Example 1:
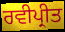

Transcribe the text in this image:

ਰਵੀਪ੍ਰੀਤ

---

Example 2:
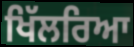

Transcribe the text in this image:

ਖਿੱਲਰਿਆ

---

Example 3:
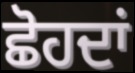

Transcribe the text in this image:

ਛੋਹਦਾਂ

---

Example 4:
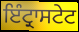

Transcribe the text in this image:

ਇੰਟ੍ਰਾਸਟੇਟ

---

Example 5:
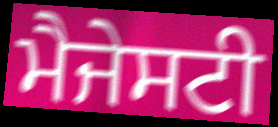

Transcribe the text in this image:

ਮੈਜੇਸਟੀ